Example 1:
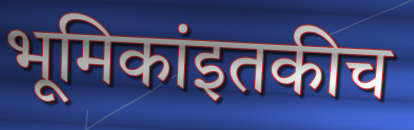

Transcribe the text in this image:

भूमिकांइतकीच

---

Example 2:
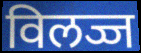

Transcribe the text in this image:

विलज्ज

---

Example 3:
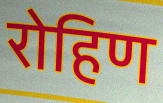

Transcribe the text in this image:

रोहिण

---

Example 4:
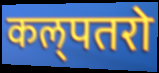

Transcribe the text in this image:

कल्पतरो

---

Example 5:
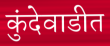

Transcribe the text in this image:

कुंदेवाडीत